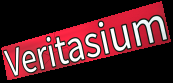
Veritasium